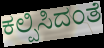
ಕಲ್ಪಿಸಿದಂತೆ